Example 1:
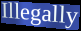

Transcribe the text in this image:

Illegally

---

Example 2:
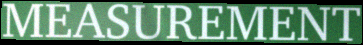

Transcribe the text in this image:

MEASUREMENT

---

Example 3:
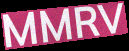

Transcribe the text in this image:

MMRV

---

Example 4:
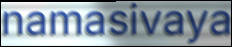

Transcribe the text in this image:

namasivaya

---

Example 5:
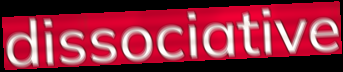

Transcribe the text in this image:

dissociative